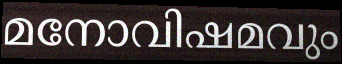
മനോവിഷമവും